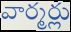
వార్మర్లు